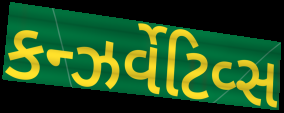
કન્ઝર્વેટિવ્સ